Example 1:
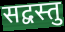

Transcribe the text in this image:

सद्वस्तु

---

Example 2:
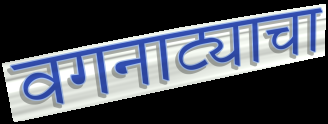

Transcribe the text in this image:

वगनाट्याचा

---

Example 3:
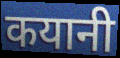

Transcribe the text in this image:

कयानी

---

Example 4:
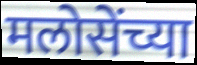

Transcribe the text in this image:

मलोसेंच्या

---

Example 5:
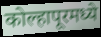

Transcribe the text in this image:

कोल्हापूरमध्ये